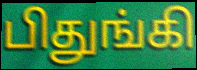
பிதுங்கி